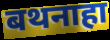
बथनाहा